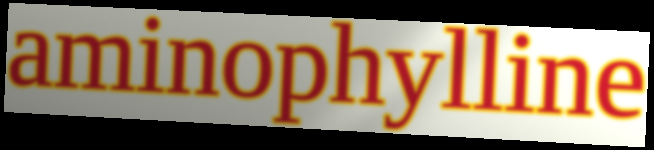
aminophylline